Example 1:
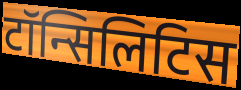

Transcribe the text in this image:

टॉन्सिलिटिस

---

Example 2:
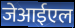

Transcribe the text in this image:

जेआईएल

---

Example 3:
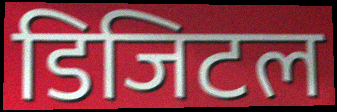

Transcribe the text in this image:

डिजिटल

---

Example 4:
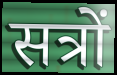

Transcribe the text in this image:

सत्रों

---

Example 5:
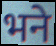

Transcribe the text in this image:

भने